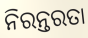
ନିରନ୍ତରତା